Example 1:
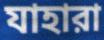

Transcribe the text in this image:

যাহারা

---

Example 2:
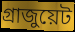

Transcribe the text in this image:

গ্রাজুয়েট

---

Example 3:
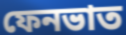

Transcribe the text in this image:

ফেনভাত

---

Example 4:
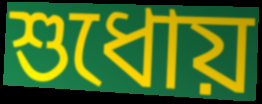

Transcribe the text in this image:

শুধোয়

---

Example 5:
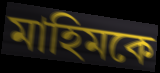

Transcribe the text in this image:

মাহিমকে